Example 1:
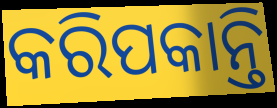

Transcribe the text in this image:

କରିପକାନ୍ତି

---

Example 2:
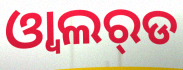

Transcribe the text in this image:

ଓ୍ବାଲର୍‌ଡ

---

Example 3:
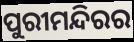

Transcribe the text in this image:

ପୁରୀମନ୍ଦିରର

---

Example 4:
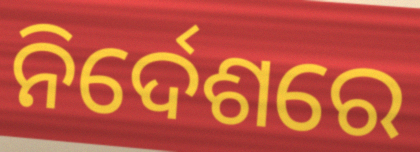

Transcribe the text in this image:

ନିର୍ଦେଶରେ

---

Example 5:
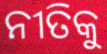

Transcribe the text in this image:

ନୀତିକୁ